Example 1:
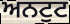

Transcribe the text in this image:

ਅਨਟੁਟ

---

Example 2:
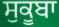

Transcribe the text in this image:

ਸੁਕੂਬਾ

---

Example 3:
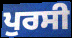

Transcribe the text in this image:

ਪੁਰਸੀ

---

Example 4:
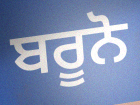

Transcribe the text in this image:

ਬਰੂਨੋ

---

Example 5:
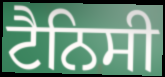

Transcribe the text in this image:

ਟੈਨਿਸੀ